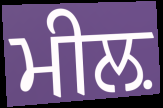
ਮੀਲ਼